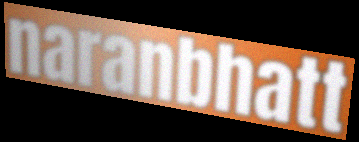
naranbhatt